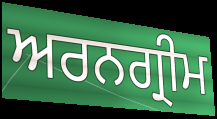
ਅਰਨਗ੍ਰੀਮ